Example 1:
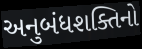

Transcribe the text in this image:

અનુબંધશક્તિનો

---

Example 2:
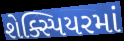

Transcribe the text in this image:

શેક્સ્પિયરમાં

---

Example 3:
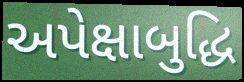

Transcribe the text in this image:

અપેક્ષાબુદ્ધિ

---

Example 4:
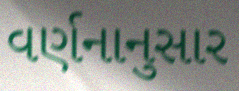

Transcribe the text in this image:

વર્ણનાનુસાર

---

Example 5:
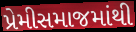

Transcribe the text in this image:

પ્રેમીસમાજમાંથી